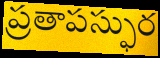
ప్రతాపస్ఫుర